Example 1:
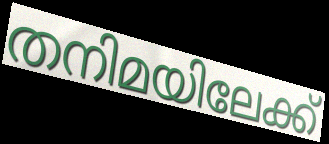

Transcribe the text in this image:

തനിമയിലേക്ക്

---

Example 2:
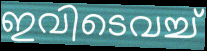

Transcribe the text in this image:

ഇവിടെവച്ച്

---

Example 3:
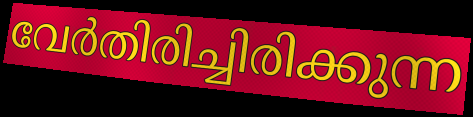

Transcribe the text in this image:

വേർതിരിച്ചിരിക്കുന്ന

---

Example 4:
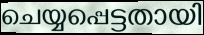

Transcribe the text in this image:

ചെയ്യപ്പെട്ടതായി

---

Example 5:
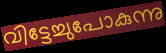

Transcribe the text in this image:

വിട്ടേച്ചുപോകുന്നു